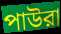
পাউরা